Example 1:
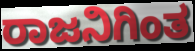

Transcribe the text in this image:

ರಾಜನಿಗಿಂತ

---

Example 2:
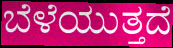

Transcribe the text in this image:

ಬೆಳೆಯುತ್ತದೆ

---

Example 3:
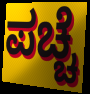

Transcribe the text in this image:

ಪಚ್ಚೆ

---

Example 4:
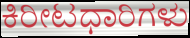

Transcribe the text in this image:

ಕಿರೀಟಧಾರಿಗಳು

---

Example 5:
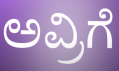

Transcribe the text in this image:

ಅವ್ರಿಗೆ